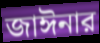
জাঈনার